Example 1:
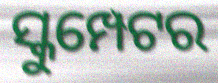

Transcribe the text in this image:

ସ୍କୁମ୍ପେଟର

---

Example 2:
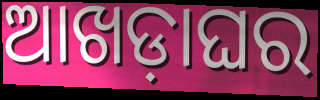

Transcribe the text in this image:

ଆଖଡ଼ାଘର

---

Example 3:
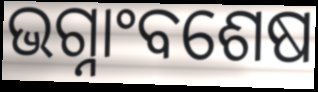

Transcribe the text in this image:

ଭଗ୍ନାଂବଶେଷ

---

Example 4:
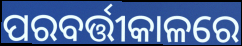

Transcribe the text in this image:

ପରବର୍ତ୍ତୀକାଳରେ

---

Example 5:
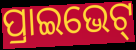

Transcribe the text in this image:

ପ୍ରାଇଭେଟ୍